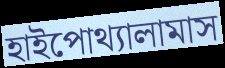
হাইপোথ্যালামাস